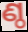
ଣ୍ଠ